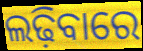
ଲଢ଼ିବାରେ